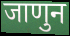
जाणुन